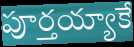
పూర్తయ్యాకే